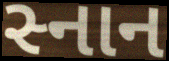
સ્નાન